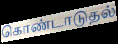
கொண்டாடுதல்